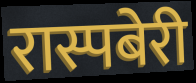
रास्पबेरी